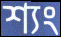
শ্যং